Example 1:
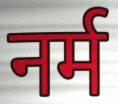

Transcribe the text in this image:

नर्म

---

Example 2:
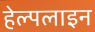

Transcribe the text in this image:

हेल्पलाइन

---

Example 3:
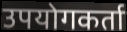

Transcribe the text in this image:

उपयोगकर्ता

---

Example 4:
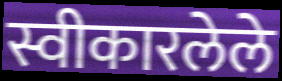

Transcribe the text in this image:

स्वीकारलेले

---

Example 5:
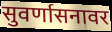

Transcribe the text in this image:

सुवर्णासनावर